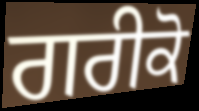
ਗਰੀਕੋ